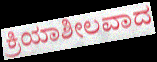
ಕ್ರಿಯಾಶೀಲವಾದ